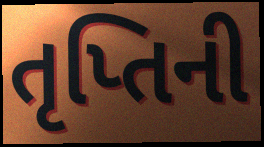
તૃપ્તિની